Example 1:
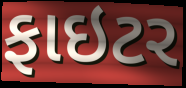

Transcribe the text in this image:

ફાઇટર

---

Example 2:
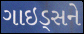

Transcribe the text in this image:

ગાઇડ્સને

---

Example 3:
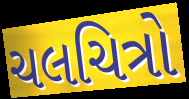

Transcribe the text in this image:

ચલચિત્રો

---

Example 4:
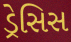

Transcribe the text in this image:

ડ્રેસિસ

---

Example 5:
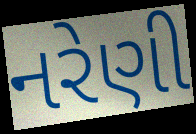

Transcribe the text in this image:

નરેણી